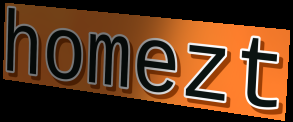
homezt